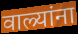
वाल्यांना